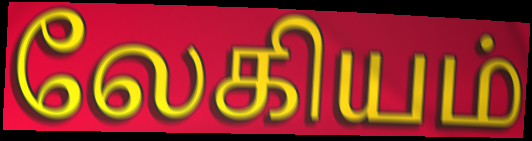
லேகியம்